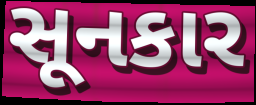
સૂનકાર